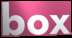
box